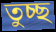
তুচ্ছ